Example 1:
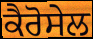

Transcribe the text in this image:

ਕੈਰੋਸੇਲ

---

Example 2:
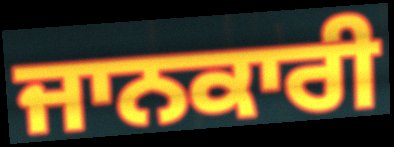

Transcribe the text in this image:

ਜਾਨਕਾਰੀ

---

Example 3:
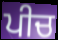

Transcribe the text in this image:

ਪੀਚ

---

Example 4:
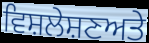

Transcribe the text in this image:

ਵਿਸ਼ਲੇਸ਼ਣਅਤੇ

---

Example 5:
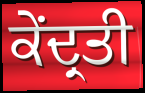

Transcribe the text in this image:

ਕੇਂਦ੍ਰਤੀ